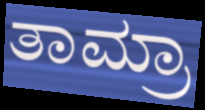
ತಾಮ್ರಾ